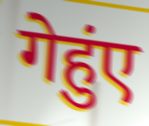
गेहुंए